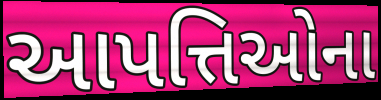
આપત્તિઓના